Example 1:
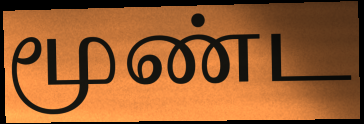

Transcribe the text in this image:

மூண்ட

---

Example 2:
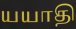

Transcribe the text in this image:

யயாதி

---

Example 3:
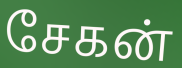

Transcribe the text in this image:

சேகன்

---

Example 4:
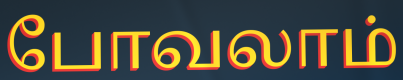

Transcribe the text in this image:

போவலாம்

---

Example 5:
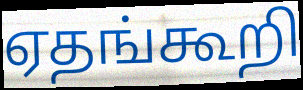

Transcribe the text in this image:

ஏதங்கூறி